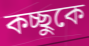
কচ্ছুকে